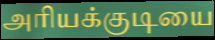
அரியக்குடியை